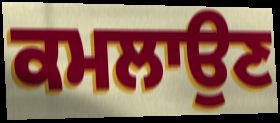
ਕਮਲਾਉਣ